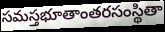
సమస్తభూతాంతరసంస్థితా